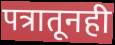
पत्रातूनही